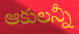
ఆకులన్నీ